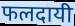
फलदायी